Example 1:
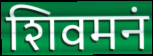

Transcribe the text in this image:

शिवमनं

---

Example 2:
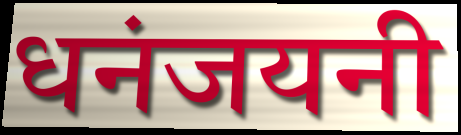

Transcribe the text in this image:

धनंजयनी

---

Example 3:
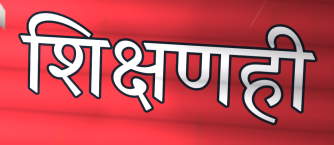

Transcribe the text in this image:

शिक्षणही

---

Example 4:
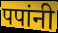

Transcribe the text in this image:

पपांनी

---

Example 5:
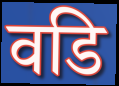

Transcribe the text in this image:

वडि